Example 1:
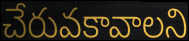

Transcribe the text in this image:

చేరువకావాలని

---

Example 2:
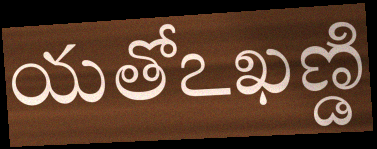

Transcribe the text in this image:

యతోఽఖణ్డి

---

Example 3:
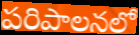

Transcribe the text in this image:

పరిపాలనలో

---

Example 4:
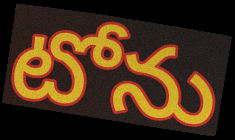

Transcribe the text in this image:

టోను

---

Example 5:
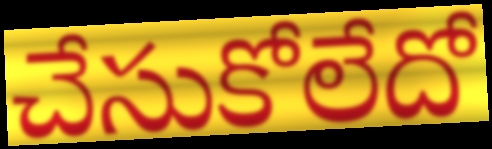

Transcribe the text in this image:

చేసుకోలేదో